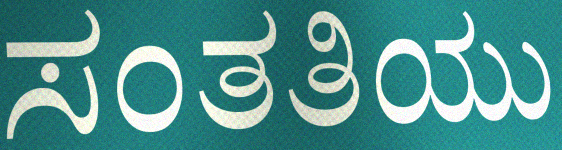
ಸಂತತಿಯು